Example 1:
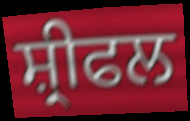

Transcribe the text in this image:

ਸ਼੍ਰੀਫਲ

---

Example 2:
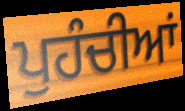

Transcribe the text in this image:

ਪੁਹੰਚੀਆਂ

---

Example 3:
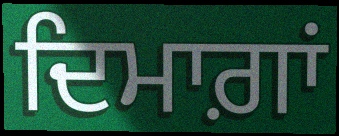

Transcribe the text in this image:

ਦਿਮਾਗ਼ਾਂ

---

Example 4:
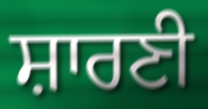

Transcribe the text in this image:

ਸ਼ਾਰਣੀ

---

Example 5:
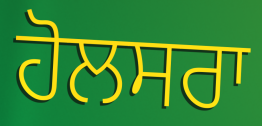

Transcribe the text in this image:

ਹੋਲਸਰਾ